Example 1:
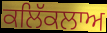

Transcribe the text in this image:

ਕਲਿੱਕਲਾਅ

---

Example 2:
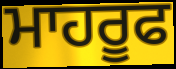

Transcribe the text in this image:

ਮਾਹਰੂਫ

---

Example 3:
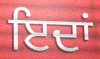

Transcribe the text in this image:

ਇਦਾਂ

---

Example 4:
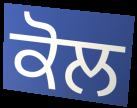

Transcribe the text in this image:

ਕੋਲ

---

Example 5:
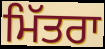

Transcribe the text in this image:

ਮਿੱਤਰਾ